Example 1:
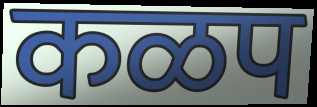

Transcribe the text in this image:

कळप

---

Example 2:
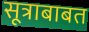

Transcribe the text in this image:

सूत्राबाबत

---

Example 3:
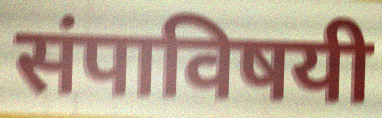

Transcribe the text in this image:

संपाविषयी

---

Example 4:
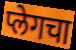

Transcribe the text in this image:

प्लेगचा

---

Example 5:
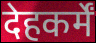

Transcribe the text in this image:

देहकर्में